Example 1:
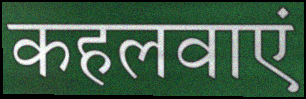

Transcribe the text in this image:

कहलवाएं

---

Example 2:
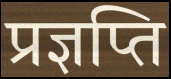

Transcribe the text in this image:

प्रज्ञप्ति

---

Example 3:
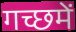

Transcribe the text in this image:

गच्छमें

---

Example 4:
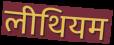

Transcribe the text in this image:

लीथियम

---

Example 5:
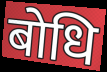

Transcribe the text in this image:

बोधि